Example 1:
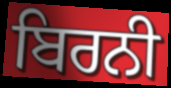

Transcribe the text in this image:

ਬਿਰਨੀ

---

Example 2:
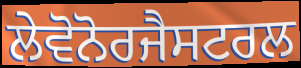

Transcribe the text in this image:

ਲੇਵੋਨੋਰਜੈਸਟਰਲ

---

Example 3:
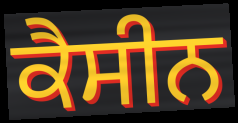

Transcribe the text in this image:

ਕੈਸੀਨ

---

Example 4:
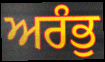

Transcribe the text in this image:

ਅਰੰਭੁ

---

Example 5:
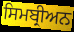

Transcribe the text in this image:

ਸਿਮਬ੍ਰੀਅਨ